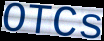
OTCs